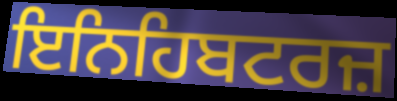
ਇਨਿਹਿਬਟਰਜ਼